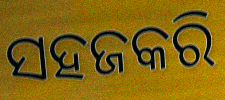
ସହଜକରି